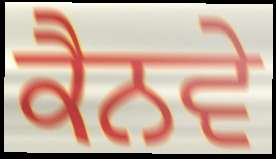
ਕੈਨਵੇ